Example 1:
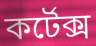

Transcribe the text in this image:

কর্টেক্স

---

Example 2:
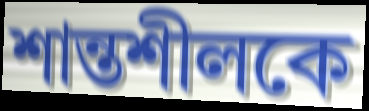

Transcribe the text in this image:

শান্তশীলকে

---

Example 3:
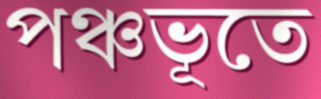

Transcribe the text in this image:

পঞ্চভূতে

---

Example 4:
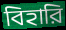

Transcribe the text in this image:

বিহারি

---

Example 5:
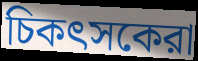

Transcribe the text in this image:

চিকৎসকেরা